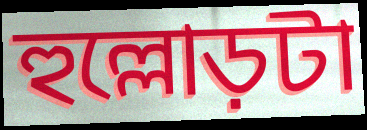
হুল্লোড়টা